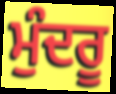
ਮੁੰਦਰੂ